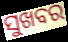
ସୁଖବର